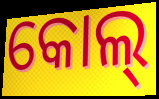
କୋଲ୍